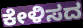
ಕೇಳಿಸದ